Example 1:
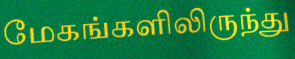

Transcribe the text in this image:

மேகங்களிலிருந்து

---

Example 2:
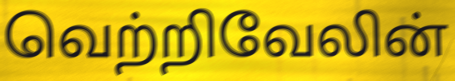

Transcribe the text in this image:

வெற்றிவேலின்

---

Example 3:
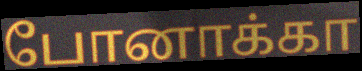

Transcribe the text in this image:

போனாக்கா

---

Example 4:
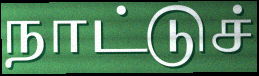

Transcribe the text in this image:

நாட்டுச்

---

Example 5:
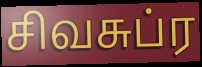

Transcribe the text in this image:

சிவசுப்ர